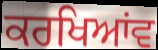
ਕਰਖਿਆਂਵ